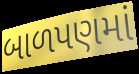
બાળપણમાં